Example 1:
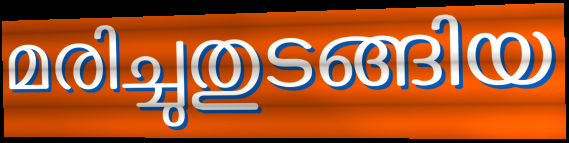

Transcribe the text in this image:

മരിച്ചുതുടങ്ങിയ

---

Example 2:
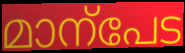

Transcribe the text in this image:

മാന്പേട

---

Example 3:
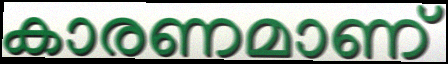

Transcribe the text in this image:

കാരണമാണ്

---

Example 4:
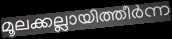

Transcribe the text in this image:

മൂലക്കല്ലായിത്തീർന്ന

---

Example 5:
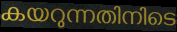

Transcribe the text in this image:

കയറുന്നതിനിടെ